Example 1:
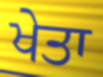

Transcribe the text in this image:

ਖੇਤਾ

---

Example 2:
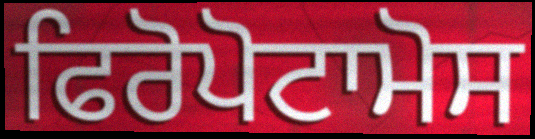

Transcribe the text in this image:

ਫਿਰੋਪੋਟਾਮੋਸ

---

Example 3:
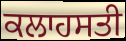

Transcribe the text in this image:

ਕਲਾਹਸਤੀ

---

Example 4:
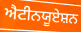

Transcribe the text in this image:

ਐਟੀਨਯੂਏਸ਼ਨ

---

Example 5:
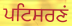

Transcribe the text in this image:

ਪਟਿਸਰਣਂ